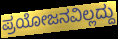
ಪ್ರಯೋಜನವಿಲ್ಲದ್ದು